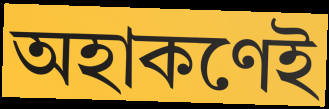
অহাকণেই